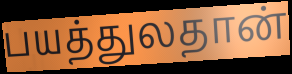
பயத்துலதான்